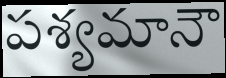
పశ్యమానౌ